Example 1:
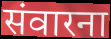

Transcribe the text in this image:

संवारना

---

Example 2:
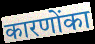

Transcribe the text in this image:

कारणोंका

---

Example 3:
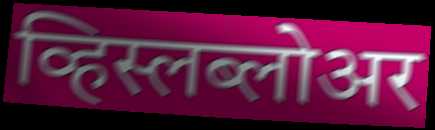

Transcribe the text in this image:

व्हिस्लब्लोअर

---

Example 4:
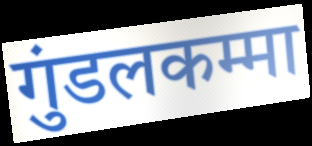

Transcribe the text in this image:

गुंडलकम्मा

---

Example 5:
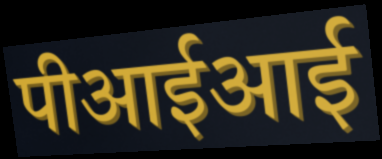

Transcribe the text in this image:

पीआईआई